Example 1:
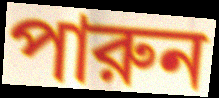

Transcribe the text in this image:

পারুন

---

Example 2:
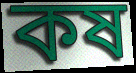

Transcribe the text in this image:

কষ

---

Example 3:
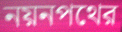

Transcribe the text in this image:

নয়নপথের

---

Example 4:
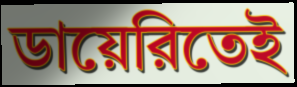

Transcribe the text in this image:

ডায়েরিতেই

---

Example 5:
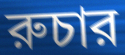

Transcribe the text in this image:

রুচার